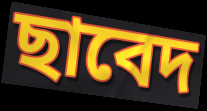
ছাবেদ